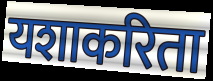
यशाकरिता